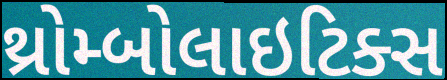
થ્રોમ્બોલાઇટિક્સ